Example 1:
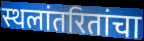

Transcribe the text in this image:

स्थलांतरितांचा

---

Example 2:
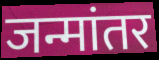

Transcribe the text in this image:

जन्मांतर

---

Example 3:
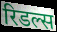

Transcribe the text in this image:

रिडल्स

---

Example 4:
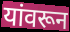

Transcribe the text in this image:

यांवरून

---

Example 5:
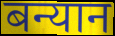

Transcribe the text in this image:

बन्यान